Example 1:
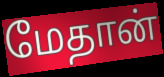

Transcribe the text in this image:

மேதான்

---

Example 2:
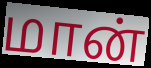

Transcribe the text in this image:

மான்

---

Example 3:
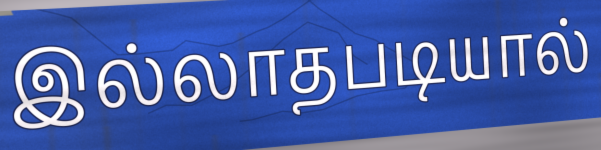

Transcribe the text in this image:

இல்லாதபடியால்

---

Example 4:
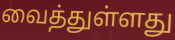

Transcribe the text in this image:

வைத்துள்ளது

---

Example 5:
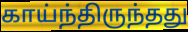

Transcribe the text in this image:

காய்ந்திருந்தது